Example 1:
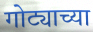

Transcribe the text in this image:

गोट्याच्या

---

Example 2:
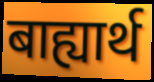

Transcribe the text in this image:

बाह्यार्थ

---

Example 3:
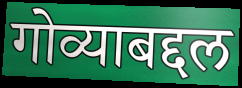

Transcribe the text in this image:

गोव्याबद्दल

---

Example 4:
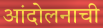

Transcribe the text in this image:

आंदोलनाची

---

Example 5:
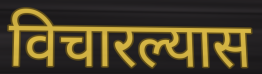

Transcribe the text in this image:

विचारल्यास